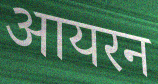
आयरन